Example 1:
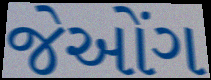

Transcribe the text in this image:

જેઓંગ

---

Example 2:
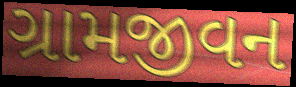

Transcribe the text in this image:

ગ્રામજીવન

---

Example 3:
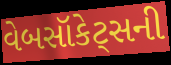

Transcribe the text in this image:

વેબસૉકેટ્સની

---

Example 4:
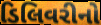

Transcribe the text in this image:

ડિલિવરીનો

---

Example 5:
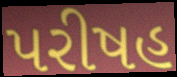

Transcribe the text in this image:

પરીષહ